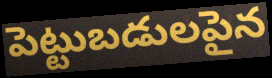
పెట్టుబడులపైన